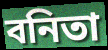
বনিতা